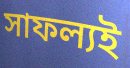
সাফল্যই